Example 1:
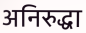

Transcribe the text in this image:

अनिरुद्धा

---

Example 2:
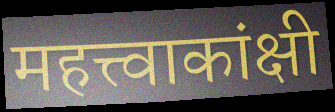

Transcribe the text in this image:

महत्त्वाकांक्षी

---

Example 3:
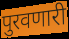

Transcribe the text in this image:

पुरवणारी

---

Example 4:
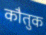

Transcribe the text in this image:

कौतुक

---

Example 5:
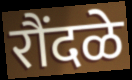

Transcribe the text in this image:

रौंदळे